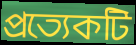
প্রত্যেকটি